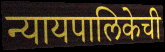
न्यायपालिकेची